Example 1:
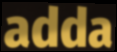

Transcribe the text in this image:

adda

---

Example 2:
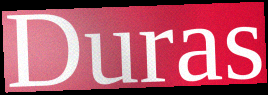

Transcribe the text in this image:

Duras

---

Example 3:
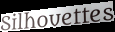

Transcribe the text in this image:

Silhouettes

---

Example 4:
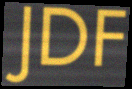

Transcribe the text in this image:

JDF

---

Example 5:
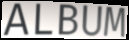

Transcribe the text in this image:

ALBUM